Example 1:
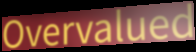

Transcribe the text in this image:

Overvalued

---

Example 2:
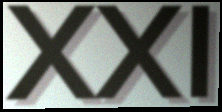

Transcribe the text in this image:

XXI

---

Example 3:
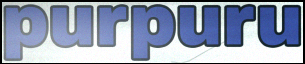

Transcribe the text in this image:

purpuru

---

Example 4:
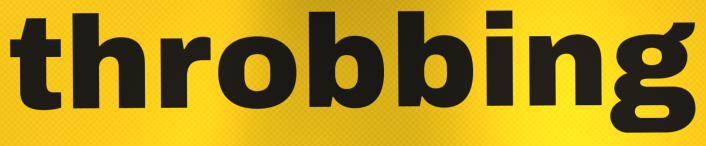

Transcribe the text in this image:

throbbing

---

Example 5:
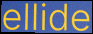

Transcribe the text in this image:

ellide